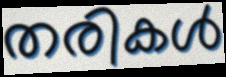
തരികൾ